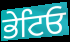
ਭੇਟਿਓ